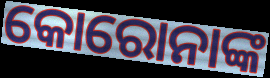
କୋରୋନାଙ୍କ